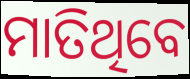
ମାତିଥିବେ